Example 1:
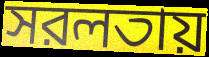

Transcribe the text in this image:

সরলতায়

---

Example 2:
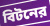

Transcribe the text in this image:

বিটনের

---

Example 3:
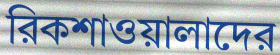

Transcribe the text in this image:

রিকশাওয়ালাদের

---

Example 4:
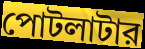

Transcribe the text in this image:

পোটলাটার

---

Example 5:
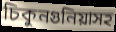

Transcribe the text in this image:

চিকুনগুনিয়াসহ